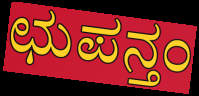
ಛುಪನ್ತಂ